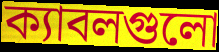
ক্যাবলগুলো